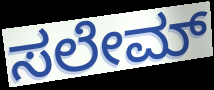
ಸಲೇಮ್